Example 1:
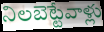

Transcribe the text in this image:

నిలబెట్టేవాళ్లు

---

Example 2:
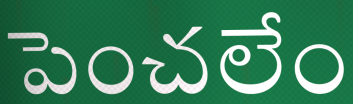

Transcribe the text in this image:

పెంచలేం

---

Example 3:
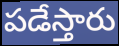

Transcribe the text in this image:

పడేస్తారు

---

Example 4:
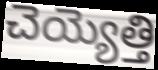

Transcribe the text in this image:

చెయ్యెత్తి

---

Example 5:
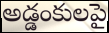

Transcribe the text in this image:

అడ్డంకులపై